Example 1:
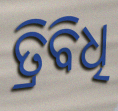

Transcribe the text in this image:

ତ୍ରିବିଧି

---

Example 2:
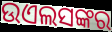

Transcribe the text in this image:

ଉଏଲସଙ୍କର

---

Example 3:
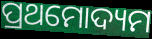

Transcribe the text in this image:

ପ୍ରଥମୋଦ୍ୟମ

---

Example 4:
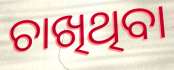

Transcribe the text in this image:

ଚାଖିଥିବା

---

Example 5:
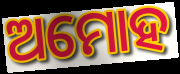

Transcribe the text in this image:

ଅମୋହ